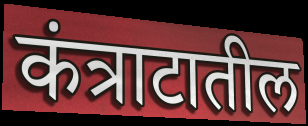
कंत्राटातील